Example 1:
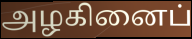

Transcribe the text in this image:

அழகினைப்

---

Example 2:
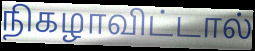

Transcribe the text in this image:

நிகழாவிட்டால்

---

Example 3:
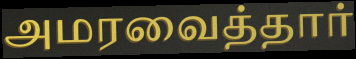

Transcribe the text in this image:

அமரவைத்தார்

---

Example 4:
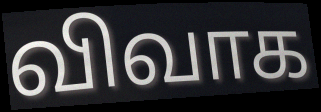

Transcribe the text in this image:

விவாக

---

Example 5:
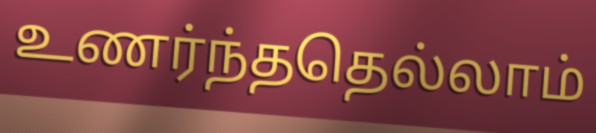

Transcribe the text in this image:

உணர்ந்ததெல்லாம்